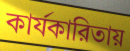
কার্যকারিতায়